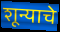
शून्याचे